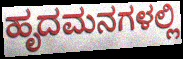
ಹೃದಮನಗಳಲ್ಲಿ